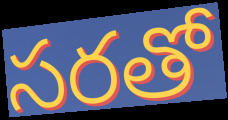
సరతో